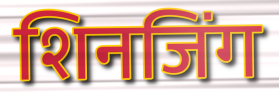
शिनजिंग